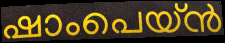
ഷാംപെയ്ൻ